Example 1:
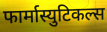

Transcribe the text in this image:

फार्मास्युटिकल्स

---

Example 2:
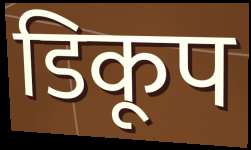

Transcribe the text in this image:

डिकूप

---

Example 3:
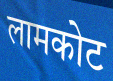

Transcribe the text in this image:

लामकोट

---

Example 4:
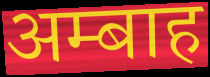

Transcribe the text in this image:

अम्बाह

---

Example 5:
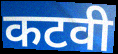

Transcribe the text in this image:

कटवी